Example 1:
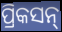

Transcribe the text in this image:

ପ୍ରିକସନ୍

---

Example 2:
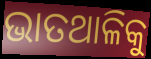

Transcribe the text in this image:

ଭାତଥାଳିକୁ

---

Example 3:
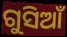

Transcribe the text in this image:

ଗୁସିଆଁ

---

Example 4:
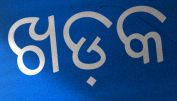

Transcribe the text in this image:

ଖଡ଼କ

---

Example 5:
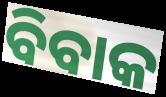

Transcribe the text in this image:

ବିବାକ